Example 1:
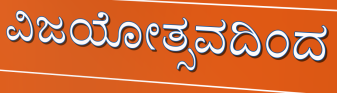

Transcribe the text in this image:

ವಿಜಯೋತ್ಸವದಿಂದ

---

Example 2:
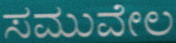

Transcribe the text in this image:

ಸಮುವೇಲ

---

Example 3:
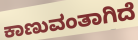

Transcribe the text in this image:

ಕಾಣುವಂತಾಗಿದೆ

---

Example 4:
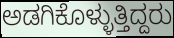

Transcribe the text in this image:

ಅಡಗಿಕೊಳ್ಳುತ್ತಿದ್ದರು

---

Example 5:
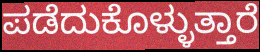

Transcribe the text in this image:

ಪಡೆದುಕೊಳ್ಳುತ್ತಾರೆ